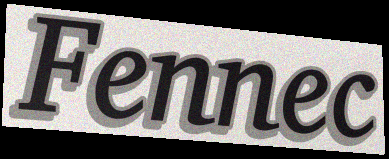
Fennec